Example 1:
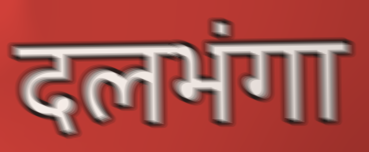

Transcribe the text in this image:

दलभंगा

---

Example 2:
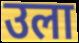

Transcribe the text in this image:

उला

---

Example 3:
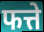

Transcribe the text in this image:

फत्ते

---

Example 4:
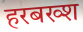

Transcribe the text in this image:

हरबख्श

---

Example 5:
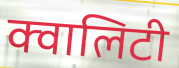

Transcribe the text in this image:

क्‍वालिटी